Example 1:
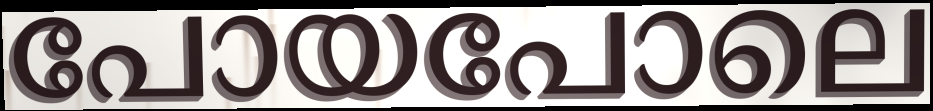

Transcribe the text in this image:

പോയപോലെ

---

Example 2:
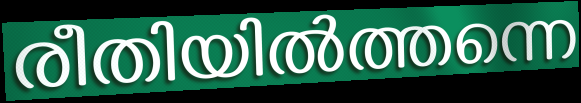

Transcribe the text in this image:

രീതിയിൽത്തന്നെ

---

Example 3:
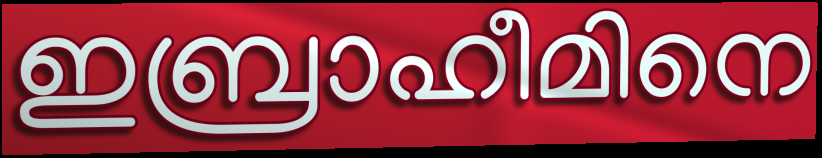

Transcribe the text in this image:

ഇബ്രാഹീമിനെ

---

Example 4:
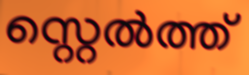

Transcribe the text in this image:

സ്റ്റെൽത്ത്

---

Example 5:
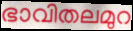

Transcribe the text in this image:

ഭാവിതലമുറ